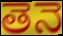
తెనె